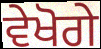
ਵੇਖੋਗੇ